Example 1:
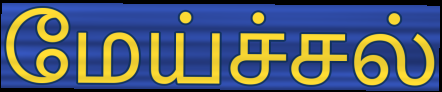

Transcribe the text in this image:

மேய்ச்சல்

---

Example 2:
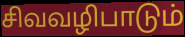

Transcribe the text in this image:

சிவவழிபாடும்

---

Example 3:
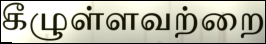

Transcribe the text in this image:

கீழுள்ளவற்றை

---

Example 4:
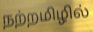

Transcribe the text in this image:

நற்றமிழில்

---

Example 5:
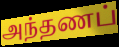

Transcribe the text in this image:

அந்தணப்